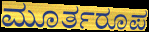
ಮೂರ್ತರೂಪ